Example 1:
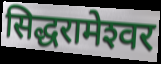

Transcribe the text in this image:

सिद्धरामेश्‍वर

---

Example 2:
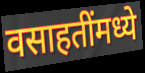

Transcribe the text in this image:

वसाहतींमध्ये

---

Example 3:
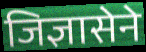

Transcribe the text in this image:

जिज्ञासेने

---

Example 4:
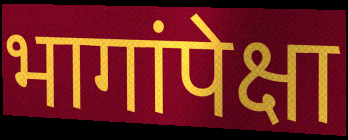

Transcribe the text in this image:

भागांपेक्षा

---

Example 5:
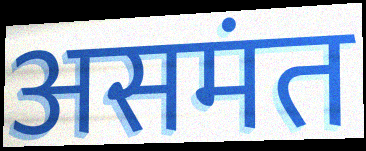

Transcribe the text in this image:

असमंत